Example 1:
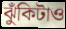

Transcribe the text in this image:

ঝুঁকিটাও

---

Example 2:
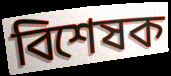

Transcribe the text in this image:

বিশেষক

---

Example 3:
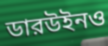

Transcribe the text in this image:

ডারউইনও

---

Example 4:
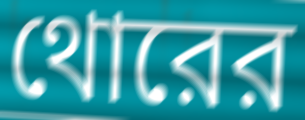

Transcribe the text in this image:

থোরের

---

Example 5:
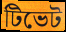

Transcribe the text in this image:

টিভেট